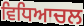
ਵਿਧਿਆਚਲ